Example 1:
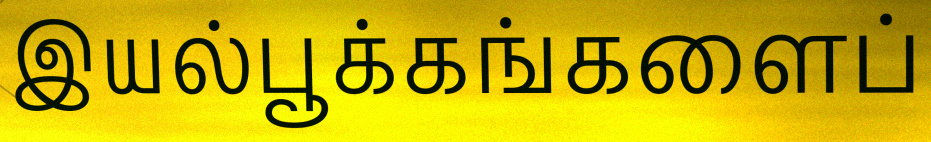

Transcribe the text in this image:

இயல்பூக்கங்களைப்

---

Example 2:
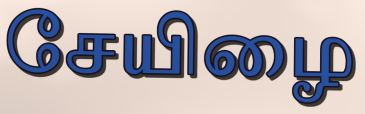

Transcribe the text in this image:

சேயிழை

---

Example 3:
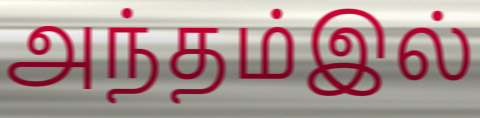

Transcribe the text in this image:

அந்தம்இல்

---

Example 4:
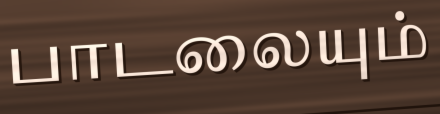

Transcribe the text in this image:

பாடலையும்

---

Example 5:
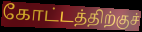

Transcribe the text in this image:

கோட்டத்திற்குச்